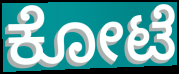
ಕೋಟೆ